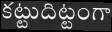
కట్టుదిట్టంగా